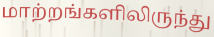
மாற்றங்களிலிருந்து